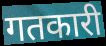
गतकारी